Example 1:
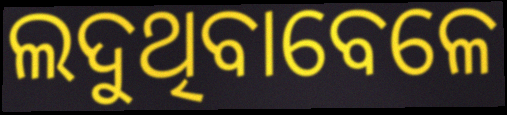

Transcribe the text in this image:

ଲଦୁଥିବାବେଳେ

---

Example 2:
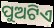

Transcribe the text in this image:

ପୁଅଟିଏ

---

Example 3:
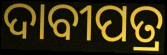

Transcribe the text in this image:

ଦାବୀପତ୍ର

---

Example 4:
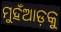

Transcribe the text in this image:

ମୁହଁଆଡ଼କୁ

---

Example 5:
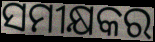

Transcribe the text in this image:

ସମୀକ୍ଷକର